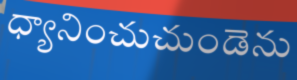
ధ్యానించుచుండెను